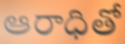
ఆరాధితో